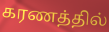
கரணத்தில்